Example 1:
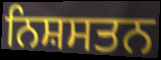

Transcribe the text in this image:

ਨਿਸ਼ਸਤਨ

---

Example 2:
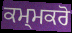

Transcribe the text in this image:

ਕਮ੍ਮਕਰੋ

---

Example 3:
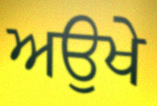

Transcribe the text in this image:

ਅਉਖੇ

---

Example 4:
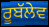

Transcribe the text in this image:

ਰੂਬੱਲੇਵ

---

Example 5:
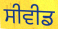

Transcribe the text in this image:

ਸੀਵੀਡ